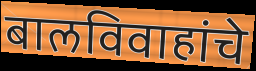
बालविवाहांचे